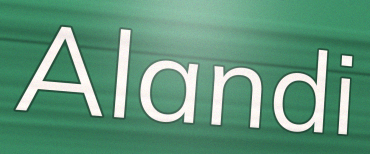
Alandi